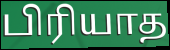
பிரியாத